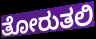
ತೋರುತಲಿ